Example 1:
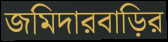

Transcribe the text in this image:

জমিদারবাড়ির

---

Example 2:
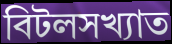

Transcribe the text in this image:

বিটলসখ্যাত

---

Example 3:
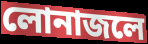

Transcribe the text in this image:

লোনাজলে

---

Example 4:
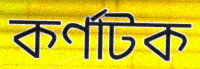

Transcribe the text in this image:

কর্ণাটক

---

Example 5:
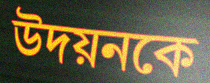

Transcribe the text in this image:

উদয়নকে